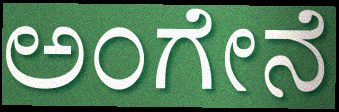
ಅಂಗೇನೆ